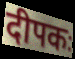
दीपकः